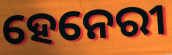
ହେନେରୀ